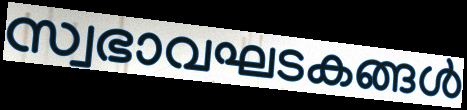
സ്വഭാവഘടകങ്ങൾ